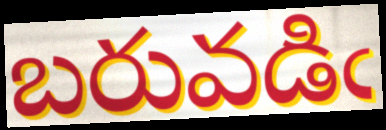
బరువడిఁ